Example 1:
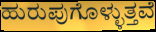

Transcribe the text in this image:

ಹುರುಪುಗೊಳ್ಳುತ್ತವೆ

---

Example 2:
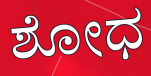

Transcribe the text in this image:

ಶೋಧ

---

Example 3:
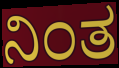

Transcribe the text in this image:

ನಿಂತ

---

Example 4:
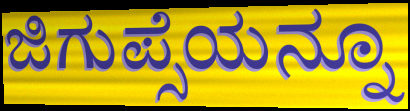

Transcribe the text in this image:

ಜಿಗುಪ್ಸೆಯನ್ನೂ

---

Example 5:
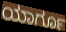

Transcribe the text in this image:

ಯಾರ್ಗೂ